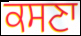
ਕਸਣਾ